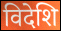
विदेशि